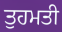
ਤੁਹਮਤੀ